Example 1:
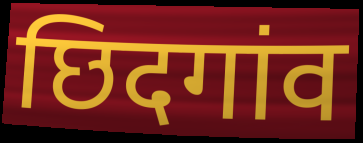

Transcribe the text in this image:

छिदगांव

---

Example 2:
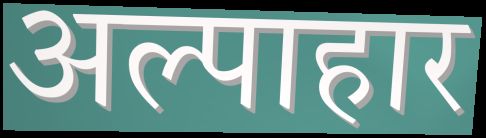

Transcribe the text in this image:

अल्पाहार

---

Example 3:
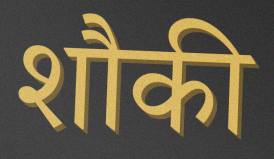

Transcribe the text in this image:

शौकी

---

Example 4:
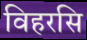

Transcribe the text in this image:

विहरसि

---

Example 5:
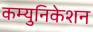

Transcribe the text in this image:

कम्युनिकेशन